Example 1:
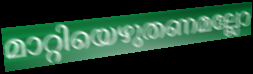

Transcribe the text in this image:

മാറ്റിയെഴുതണമല്ലോ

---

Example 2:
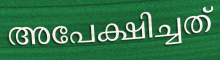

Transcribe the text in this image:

അപേക്ഷിച്ചത്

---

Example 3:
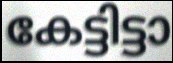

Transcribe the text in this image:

കേട്ടിട്ടാ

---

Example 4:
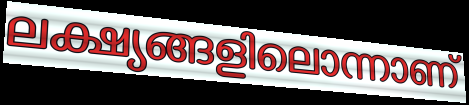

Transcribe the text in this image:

ലക്ഷ്യങ്ങളിലൊന്നാണ്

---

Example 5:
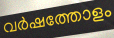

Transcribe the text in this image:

വർഷത്തോളം